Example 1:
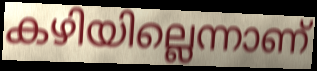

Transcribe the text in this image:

കഴിയില്ലെന്നാണ്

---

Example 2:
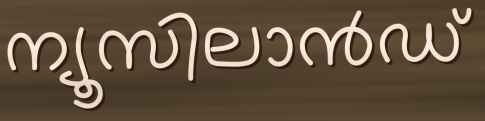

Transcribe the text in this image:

ന്യൂസിലാൻഡ്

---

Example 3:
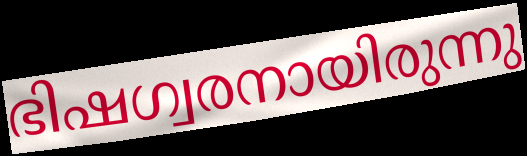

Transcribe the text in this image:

ഭിഷഗ്വരനായിരുന്നു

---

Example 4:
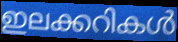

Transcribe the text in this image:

ഇലക്കറികൾ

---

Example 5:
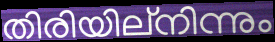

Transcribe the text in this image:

തിരിയില്നിന്നും